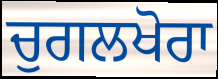
ਚੁਗਲਖੋਰਾ